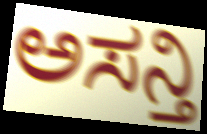
ಅಸನ್ತಿ